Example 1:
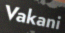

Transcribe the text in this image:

Vakani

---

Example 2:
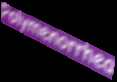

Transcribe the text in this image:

Polymenorrhea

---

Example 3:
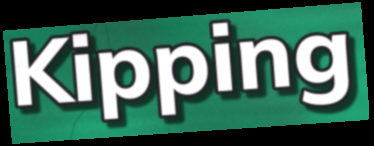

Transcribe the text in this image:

Kipping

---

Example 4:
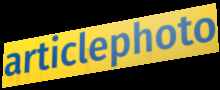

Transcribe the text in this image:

articlephoto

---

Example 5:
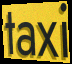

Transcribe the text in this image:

taxi